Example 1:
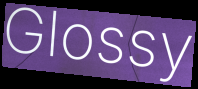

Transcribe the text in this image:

Glossy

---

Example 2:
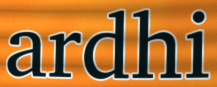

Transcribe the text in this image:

ardhi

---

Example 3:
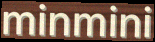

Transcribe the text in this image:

minmini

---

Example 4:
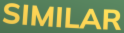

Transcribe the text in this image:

SIMILAR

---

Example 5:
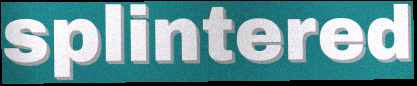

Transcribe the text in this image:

splintered